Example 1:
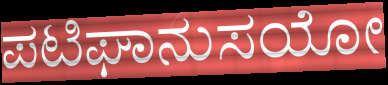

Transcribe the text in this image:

ಪಟಿಘಾನುಸಯೋ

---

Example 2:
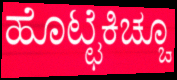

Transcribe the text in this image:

ಹೊಟ್ಟೆಕಿಚ್ಚೂ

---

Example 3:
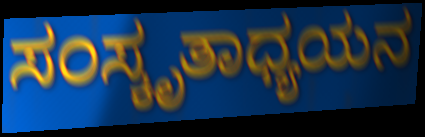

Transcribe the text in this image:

ಸಂಸ್ಕೃತಾಧ್ಯಯನ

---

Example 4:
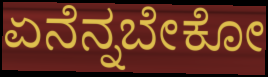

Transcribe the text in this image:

ಏನೆನ್ನಬೇಕೋ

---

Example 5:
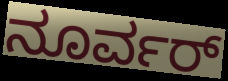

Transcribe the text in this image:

ನೂರ್ವರ್